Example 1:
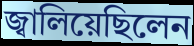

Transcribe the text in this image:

জ্বালিয়েছিলেন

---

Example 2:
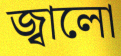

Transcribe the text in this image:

জ্বালো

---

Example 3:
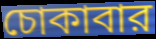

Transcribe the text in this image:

চোকাবার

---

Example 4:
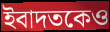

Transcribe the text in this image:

ইবাদতকেও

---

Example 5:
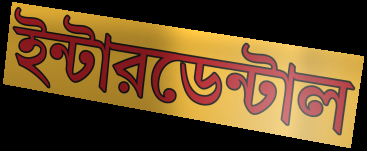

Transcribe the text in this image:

ইন্টারডেন্টাল